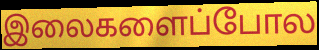
இலைகளைப்போல